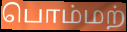
பொம்மற்